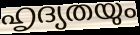
ഹൃദ്യതയും